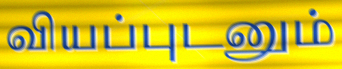
வியப்புடனும்